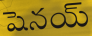
షెనయ్